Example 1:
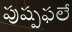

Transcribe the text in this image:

పుష్పఫలే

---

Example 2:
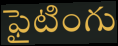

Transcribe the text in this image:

ఫైటింగు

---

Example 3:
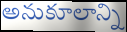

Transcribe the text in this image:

అనుకూలాన్ని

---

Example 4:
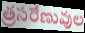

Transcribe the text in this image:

త్రసరేణువుల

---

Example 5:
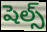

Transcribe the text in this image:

షెల్స్